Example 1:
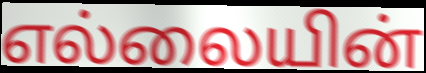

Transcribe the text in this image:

எல்லையின்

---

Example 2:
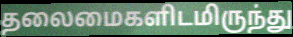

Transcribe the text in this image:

தலைமைகளிடமிருந்து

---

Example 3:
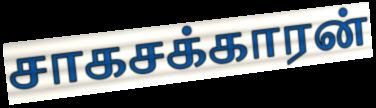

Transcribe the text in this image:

சாகசக்காரன்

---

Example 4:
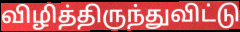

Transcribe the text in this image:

விழித்திருந்துவிட்டு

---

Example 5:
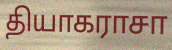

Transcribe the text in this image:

தியாகராசா